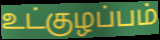
உட்குழப்பம்